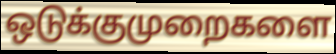
ஒடுக்குமுறைகளை